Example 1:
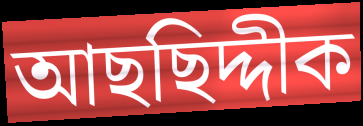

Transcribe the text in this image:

আছছিদ্দীক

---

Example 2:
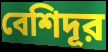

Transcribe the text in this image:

বেশিদূর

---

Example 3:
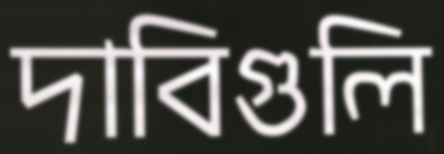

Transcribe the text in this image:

দাবিগুলি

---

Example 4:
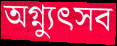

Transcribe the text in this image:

অগ্ন্যুৎসব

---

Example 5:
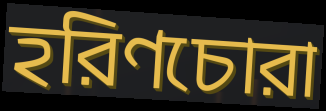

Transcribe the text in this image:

হরিণচোরা